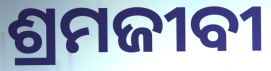
ଶ୍ରମଜୀବୀ